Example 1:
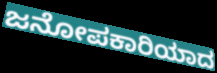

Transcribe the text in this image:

ಜನೋಪಕಾರಿಯಾದ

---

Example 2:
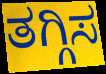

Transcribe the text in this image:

ತಗ್ಗಿಸ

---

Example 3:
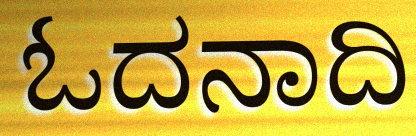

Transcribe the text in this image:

ಓದನಾದಿ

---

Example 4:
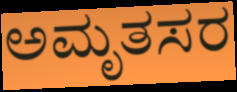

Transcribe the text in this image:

ಅಮೃತಸರ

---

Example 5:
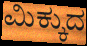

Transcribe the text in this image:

ಮಿಕ್ಕುದ